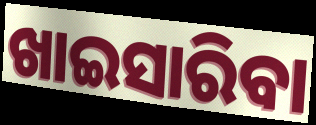
ଖାଇସାରିବା